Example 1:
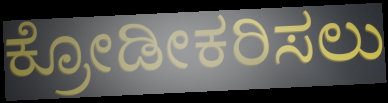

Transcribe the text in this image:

ಕ್ರೋಡೀಕರಿಸಲು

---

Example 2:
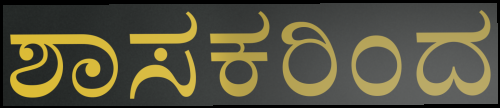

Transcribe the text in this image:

ಶಾಸಕರಿಂದ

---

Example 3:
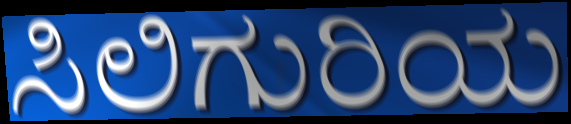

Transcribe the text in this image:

ಸಿಲಿಗುರಿಯ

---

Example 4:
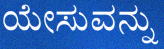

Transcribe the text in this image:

ಯೇಸುವನ್ನು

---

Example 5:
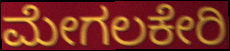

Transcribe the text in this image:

ಮೇಗಲಕೇರಿ